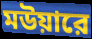
মউয়ারে